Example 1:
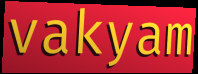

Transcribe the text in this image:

vakyam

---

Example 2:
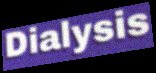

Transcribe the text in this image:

Dialysis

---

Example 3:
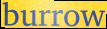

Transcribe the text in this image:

burrow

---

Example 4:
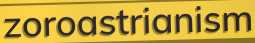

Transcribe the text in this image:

zoroastrianism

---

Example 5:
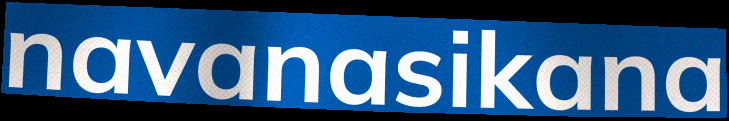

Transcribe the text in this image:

navanasikana